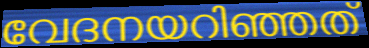
വേദനയറിഞ്ഞത്